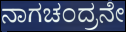
ನಾಗಚಂದ್ರನೇ